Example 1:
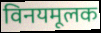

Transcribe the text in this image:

विनयमूलक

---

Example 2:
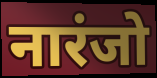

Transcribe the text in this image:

नारंजो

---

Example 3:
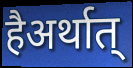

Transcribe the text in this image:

हैअर्थात्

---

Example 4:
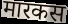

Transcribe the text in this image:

मारकस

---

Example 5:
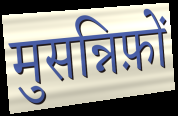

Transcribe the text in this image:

मुसन्निफ़ों